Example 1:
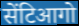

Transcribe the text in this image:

सेंटिआगो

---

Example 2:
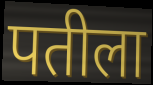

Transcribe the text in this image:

पतीला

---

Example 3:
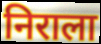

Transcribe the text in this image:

निराला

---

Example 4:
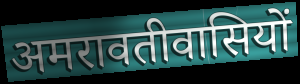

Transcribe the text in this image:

अमरावतीवासियों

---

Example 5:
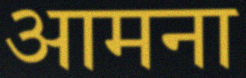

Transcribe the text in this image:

आमना